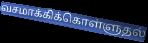
வசமாக்கிக்கொள்ளுதல்